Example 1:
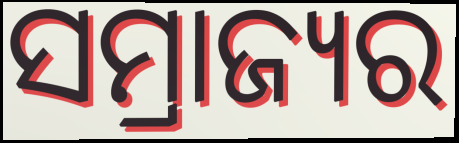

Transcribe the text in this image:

ସମ୍ରାଜ୍ୟର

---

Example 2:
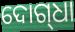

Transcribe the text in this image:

ଦୋଗ୍‌ଧା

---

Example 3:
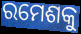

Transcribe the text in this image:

ରମେଶକୁ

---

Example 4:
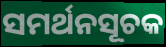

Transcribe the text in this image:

ସମର୍ଥନସୂଚକ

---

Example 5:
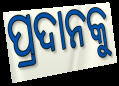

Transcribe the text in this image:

ପ୍ରଦାନକୁ